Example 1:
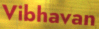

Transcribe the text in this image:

Vibhavan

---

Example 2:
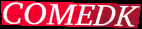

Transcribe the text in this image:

COMEDK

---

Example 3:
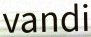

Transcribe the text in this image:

vandi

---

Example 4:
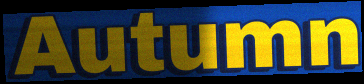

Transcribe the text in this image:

Autumn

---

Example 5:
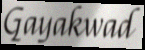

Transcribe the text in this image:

Gayakwad